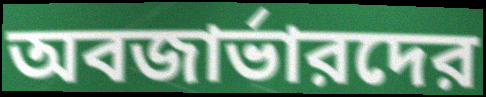
অবজার্ভারদের